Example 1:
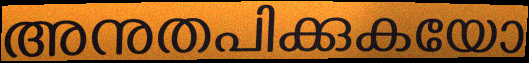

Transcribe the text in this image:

അനുതപിക്കുകയോ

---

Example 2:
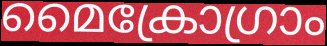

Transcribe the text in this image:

മൈക്രോഗ്രാം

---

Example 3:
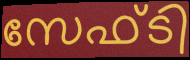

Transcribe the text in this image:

സേഫ്ടി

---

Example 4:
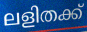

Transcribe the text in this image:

ലളിതക്ക്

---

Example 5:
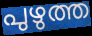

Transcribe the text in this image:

പുഴുത്ത